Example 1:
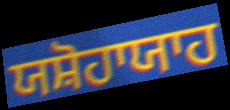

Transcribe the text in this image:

ਯਸ਼ੋਹਾਯਾਹ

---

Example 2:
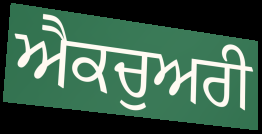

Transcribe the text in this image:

ਐਕਚੁਅਰੀ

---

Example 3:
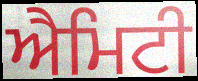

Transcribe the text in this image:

ਐਮਿਟੀ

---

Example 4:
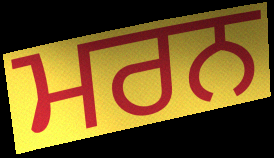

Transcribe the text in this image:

ਮਰਨ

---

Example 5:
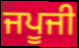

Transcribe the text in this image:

ਜਪੂਜੀ